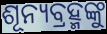
ଶୂନ୍ୟବ୍ରହ୍ମଙ୍କୁ